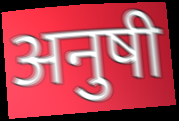
अनुषी